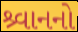
શ્ર્વાનનો